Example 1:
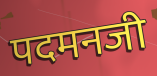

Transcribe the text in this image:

पदमनजी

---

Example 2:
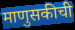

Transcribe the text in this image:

माणुसकीची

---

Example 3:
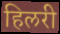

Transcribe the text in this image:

हिलरी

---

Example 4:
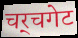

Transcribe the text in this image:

चर्चगेट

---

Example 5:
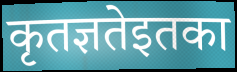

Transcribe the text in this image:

कृतज्ञतेइतका